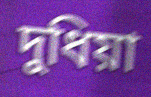
দুধিয়া